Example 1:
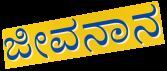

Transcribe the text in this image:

ಜೀವನಾನ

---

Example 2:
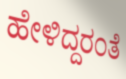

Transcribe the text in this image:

ಹೇಳಿದ್ದರಂತೆ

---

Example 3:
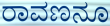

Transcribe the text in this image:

ರಾವಣನೂ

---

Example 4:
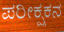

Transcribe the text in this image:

ಪರೀಕ್ಷಕನ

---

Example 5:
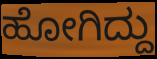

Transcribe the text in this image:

ಹೋಗಿದ್ದು